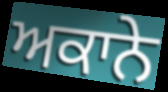
ਅਕਾਨੇ